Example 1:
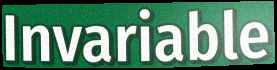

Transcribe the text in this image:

Invariable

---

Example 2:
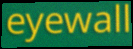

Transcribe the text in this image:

eyewall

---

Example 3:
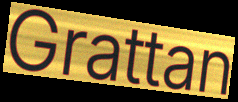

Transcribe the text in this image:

Grattan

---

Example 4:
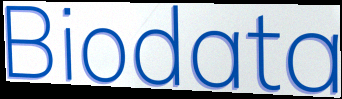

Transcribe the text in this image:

Biodata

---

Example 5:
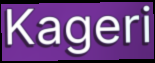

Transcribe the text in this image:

Kageri